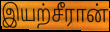
இயற்சீரான்